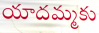
యాదమ్మకు